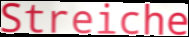
Streiche